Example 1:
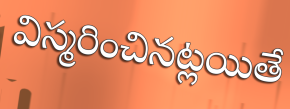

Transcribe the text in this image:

విస్మరించినట్లయితే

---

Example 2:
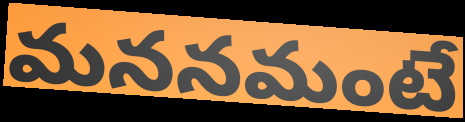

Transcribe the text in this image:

మననమంటే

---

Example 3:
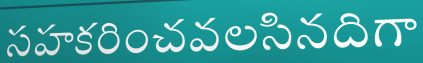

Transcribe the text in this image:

సహకరించవలసినదిగా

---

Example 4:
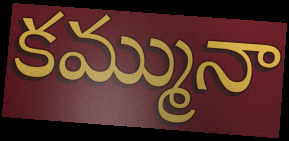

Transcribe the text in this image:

కమ్మునా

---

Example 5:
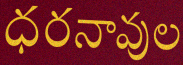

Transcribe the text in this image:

ధరనావుల